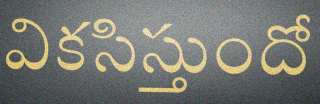
వికసిస్తుందో